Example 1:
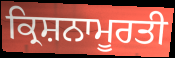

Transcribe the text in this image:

ਕ੍ਰਿਸ਼ਨਾਮੂਰਤੀ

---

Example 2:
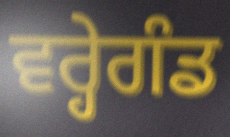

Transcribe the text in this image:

ਵਰ੍ਹੇਗੰਡ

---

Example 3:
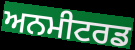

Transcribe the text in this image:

ਅਨਮੀਟਰਡ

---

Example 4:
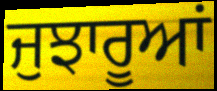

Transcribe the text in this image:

ਜੁਝਾਰੂਆਂ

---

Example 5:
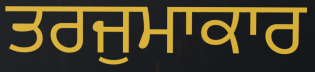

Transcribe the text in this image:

ਤਰਜੁਮਾਕਾਰ